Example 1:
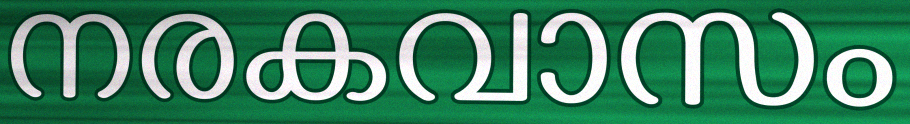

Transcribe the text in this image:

നരകവാസം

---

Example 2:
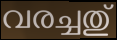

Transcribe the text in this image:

വരച്ചതു്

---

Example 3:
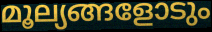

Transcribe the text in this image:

മൂല്യങ്ങളോടും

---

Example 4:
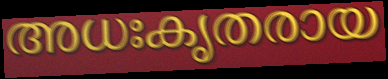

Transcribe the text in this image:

അധഃകൃതരായ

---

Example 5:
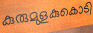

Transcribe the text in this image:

കുരുമുളകുകൊടി